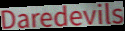
Daredevils